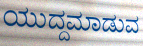
ಯುದ್ದಮಾಡುವ